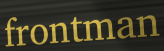
frontman